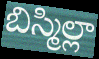
బిస్మిల్లా